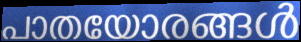
പാതയോരങ്ങൾ